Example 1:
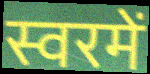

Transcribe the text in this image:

स्वरमें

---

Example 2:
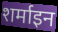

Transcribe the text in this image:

शर्माइन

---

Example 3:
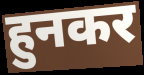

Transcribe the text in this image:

हुनकर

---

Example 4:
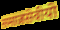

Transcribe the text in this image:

समाजसेवीयो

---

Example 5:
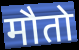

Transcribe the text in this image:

मौतो